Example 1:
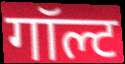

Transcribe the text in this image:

गॉल्ट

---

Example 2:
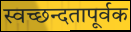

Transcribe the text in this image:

स्वच्छन्दतापूर्वक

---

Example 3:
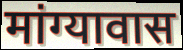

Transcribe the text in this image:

मांग्यावास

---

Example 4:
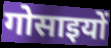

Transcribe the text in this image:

गोसाइयों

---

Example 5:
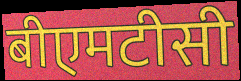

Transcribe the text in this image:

बीएमटीसी